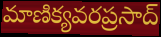
మాణిక్యవరప్రసాద్